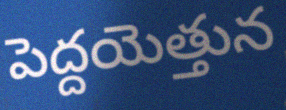
పెద్దయెత్తున